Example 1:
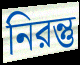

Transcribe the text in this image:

নিরন্তু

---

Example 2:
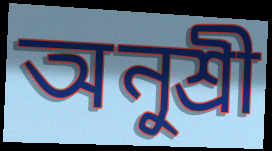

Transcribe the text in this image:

অনুশ্রী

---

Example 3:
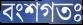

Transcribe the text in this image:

বংশগতঃ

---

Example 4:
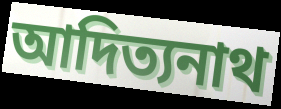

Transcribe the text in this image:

আদিত্যনাথ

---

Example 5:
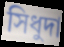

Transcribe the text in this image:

সিধুদা